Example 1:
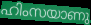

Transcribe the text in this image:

ഹിംസയാണു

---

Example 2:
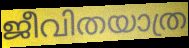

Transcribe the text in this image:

ജീവിതയാത്ര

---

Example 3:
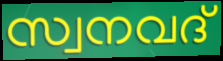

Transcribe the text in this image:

സ്വനവദ്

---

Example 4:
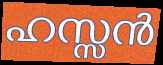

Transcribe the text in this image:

ഹസ്സൻ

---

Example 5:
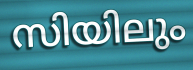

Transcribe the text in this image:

സിയിലും